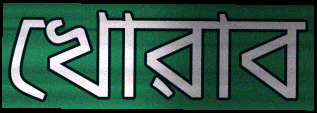
খোৱাব